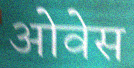
ओवेस